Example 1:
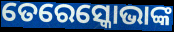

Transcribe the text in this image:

ତେରେସ୍କୋଭାଙ୍କ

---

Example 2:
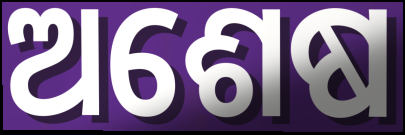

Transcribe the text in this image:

ଅଶେଷ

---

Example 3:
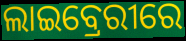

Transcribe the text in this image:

ଲାଇବ୍ରେରୀରେ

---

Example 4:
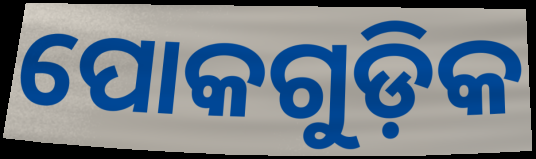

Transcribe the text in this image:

ପୋକଗୁଡ଼ିକ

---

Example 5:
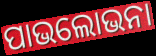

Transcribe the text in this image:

ପାଭଲୋଭନା